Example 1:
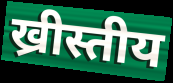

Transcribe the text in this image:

ख्रीस्तीय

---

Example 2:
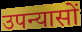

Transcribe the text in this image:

उपन्यासों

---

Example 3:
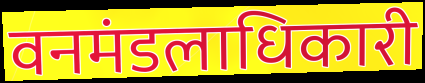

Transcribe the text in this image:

वनमंडलाधिकारी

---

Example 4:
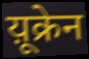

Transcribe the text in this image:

य़ूक्रेन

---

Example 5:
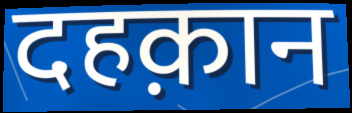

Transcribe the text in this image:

दहक़ान